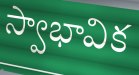
స్వాభావిక